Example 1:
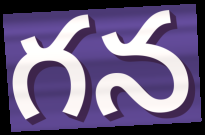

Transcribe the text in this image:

గన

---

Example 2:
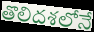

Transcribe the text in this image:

తొలిదశలోనే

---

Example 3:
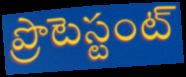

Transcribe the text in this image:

ప్రొటెస్టంట్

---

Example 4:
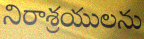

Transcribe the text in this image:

నిరాశ్రయులను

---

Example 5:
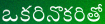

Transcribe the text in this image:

ఒకరినొకరితో